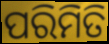
ପରିମିତି